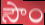
సౌం